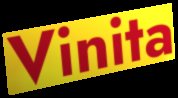
Vinita